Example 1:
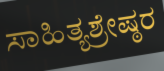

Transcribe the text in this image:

ಸಾಹಿತ್ಯಶ್ರೇಷ್ಠರ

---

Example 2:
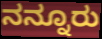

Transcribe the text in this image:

ನನ್ನೂರು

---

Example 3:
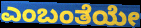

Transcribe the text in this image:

ಎಂಬಂತೆಯೇ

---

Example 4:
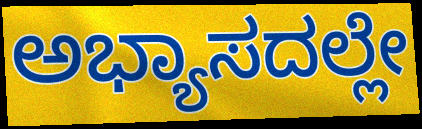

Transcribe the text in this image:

ಅಭ್ಯಾಸದಲ್ಲೇ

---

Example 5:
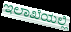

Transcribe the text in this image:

ಇಲಾಖೆಯಲ್ಲಿ